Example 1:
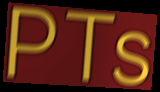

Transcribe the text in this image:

PTs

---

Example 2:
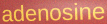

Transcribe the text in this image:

adenosine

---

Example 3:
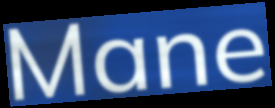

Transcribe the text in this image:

Mane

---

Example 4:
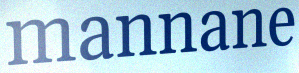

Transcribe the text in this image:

mannane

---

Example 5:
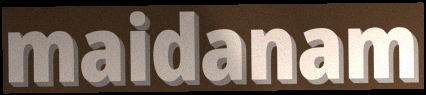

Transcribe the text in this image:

maidanam